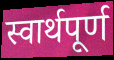
स्वार्थपूर्ण